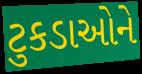
ટુકડાઓને